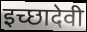
इच्छादेवी